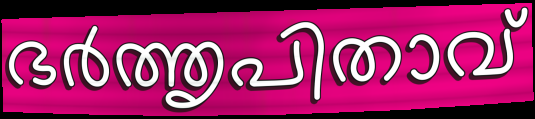
ഭർത്തൃപിതാവ്